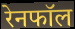
रेनफॉल